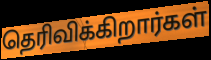
தெரிவிக்கிறார்கள்